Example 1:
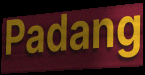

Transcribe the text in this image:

Padang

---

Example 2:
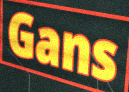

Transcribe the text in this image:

Gans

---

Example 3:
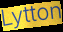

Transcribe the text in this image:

Lytton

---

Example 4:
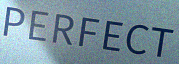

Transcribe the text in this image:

PERFECT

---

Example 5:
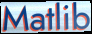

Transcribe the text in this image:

Matlib